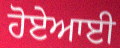
ਹੋਏਆਈ